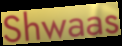
Shwaas